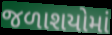
જળાશયોમાં